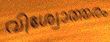
വിശ്വോത്തരം